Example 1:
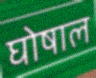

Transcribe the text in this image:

घोषाल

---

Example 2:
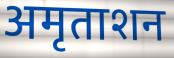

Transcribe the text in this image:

अमृताशन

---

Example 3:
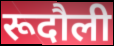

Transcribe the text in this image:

रूदौली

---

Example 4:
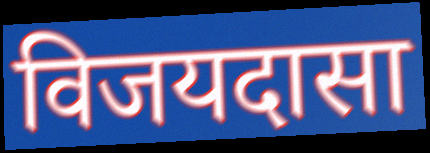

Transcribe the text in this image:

विजयदासा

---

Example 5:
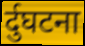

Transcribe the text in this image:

र्दुघटना